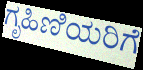
ಗೃಹಿಣಿಯರಿಗೆ